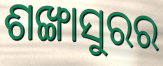
ଶଙ୍ଖାସୁରର